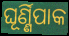
ଘୂର୍ଣ୍ଣିପାକ